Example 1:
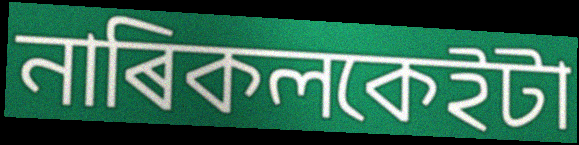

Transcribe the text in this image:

নাৰিকলকেইটা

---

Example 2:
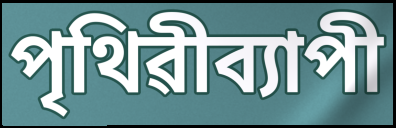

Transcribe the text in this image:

পৃথিৱীব্যাপী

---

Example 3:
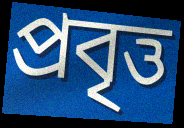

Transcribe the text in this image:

প্ৰবৃত্ত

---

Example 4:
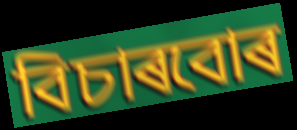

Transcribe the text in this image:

বিচাৰবোৰ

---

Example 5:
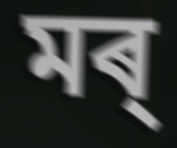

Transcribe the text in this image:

মৰ্